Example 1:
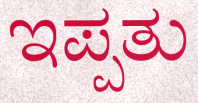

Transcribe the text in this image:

ಇಪ್ಪತು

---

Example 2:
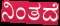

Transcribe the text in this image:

ನಿಂತದೆ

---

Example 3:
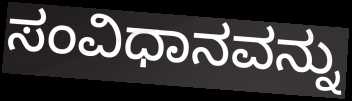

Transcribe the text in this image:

ಸಂವಿಧಾನವನ್ನು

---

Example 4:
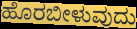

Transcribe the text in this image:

ಹೊರಬೀಳುವುದು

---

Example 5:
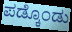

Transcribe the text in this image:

ಪಡ್ಕೊಂಡು